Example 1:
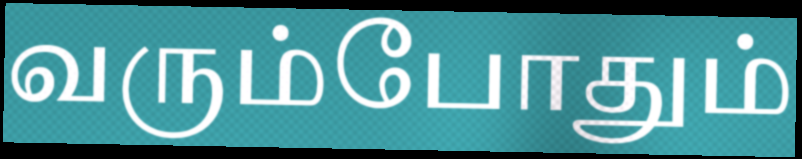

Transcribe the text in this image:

வரும்போதும்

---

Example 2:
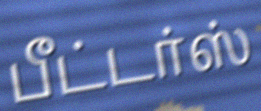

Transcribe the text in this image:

பீட்டர்ஸ்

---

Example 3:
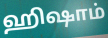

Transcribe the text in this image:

ஹிஷாம்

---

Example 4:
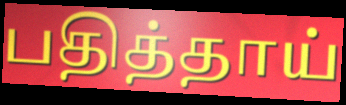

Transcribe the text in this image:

பதித்தாய்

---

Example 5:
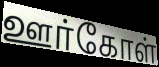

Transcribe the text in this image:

ஊர்கோள்